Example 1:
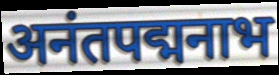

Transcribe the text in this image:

अनंतपद्मनाभ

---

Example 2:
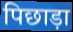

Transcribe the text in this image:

पिछाड़ा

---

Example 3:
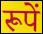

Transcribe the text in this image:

रूपें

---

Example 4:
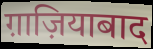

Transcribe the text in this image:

ग़ाज़ियाबाद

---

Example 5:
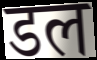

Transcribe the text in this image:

डल